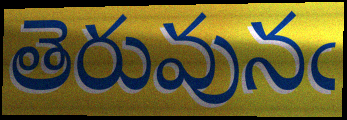
తెరువునఁ